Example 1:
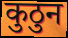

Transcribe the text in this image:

कुठुन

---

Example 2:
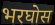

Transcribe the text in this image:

भरघोस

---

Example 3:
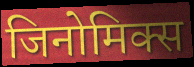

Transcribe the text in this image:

जिनोमिक्स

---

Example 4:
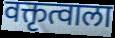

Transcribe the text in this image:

वक्तृत्वाला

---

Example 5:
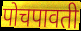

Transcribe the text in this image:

पोचपावती